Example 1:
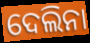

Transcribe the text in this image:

ଦେଲିନା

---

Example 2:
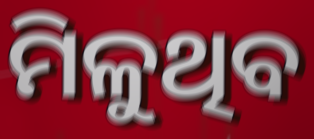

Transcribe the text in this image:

ମିଳୁଥିବ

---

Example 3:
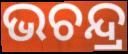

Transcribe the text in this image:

ଭଚନ୍ଦ୍ର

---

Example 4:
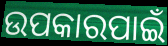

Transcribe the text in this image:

ଉପକାରପାଇଁ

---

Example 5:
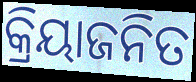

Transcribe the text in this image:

କ୍ରିୟାଜନିତ